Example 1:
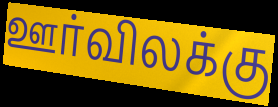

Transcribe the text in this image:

ஊர்விலக்கு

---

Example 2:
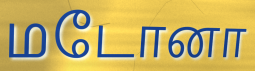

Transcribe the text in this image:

மடோனா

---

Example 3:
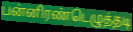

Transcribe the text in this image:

பன்னிரண்டெழுத்தடி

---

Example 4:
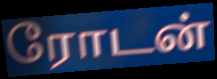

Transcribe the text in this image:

ரோடன்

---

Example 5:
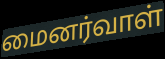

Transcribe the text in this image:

மைனர்வாள்